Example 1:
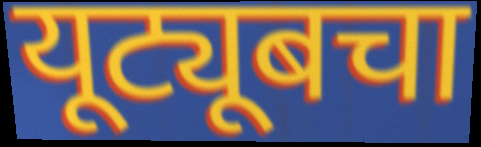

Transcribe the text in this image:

यूट्यूबचा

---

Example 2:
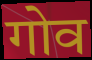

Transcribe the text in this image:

गोव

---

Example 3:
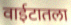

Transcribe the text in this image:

वाईटातला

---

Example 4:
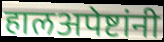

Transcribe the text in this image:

हालअपेष्टांनी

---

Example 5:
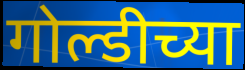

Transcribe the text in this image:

गोल्डीच्या